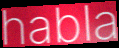
habla